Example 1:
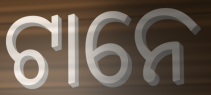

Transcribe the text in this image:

ଟାନେ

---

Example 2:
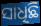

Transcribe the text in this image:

ସାଧିଛି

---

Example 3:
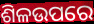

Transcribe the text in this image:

ଶିଳଉପରେ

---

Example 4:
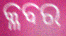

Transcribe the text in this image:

କ୍ଳବର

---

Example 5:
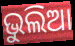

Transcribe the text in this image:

ଭୁଲିଆ